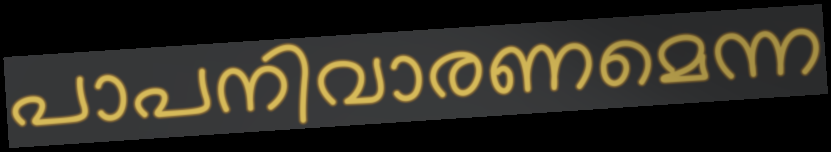
പാപനിവാരണമെന്ന